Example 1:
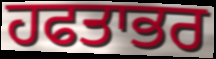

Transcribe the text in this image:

ਹਫਤਾਭਰ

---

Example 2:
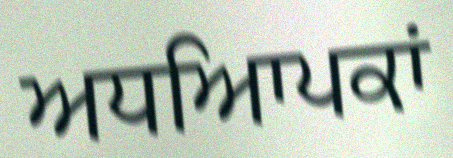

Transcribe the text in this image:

ਅਧਆਿਪਕਾਂ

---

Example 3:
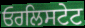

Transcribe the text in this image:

ਓਰਲਿਸਟੇਟ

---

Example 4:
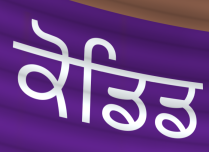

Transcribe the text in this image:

ਕੋਡਿਡ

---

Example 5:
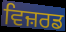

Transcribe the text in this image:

ਵਿਜ਼ਰਡ